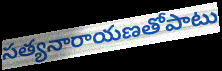
సత్యనారాయణతోపాటు